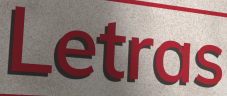
Letras